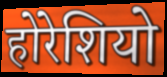
होरेशियो